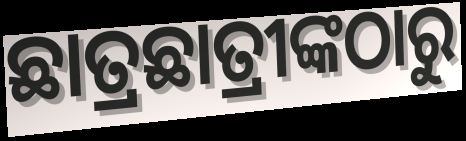
ଛାତ୍ରଛାତ୍ରୀଙ୍କଠାରୁ